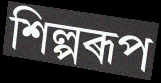
শিল্পৰূপ